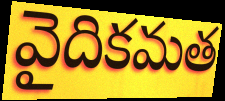
వైదికమత